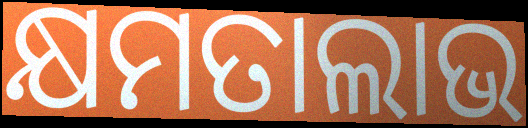
କ୍ଷମତାଲାଭ